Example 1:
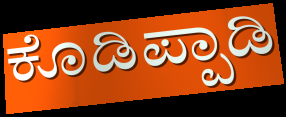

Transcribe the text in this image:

ಕೊಡಿಪ್ಪಾಡಿ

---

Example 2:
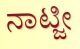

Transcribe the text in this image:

ನಾಟ್ಜೀ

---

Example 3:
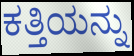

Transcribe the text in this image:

ಕತ್ತಿಯನ್ನು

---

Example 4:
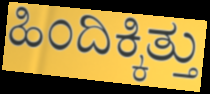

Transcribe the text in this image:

ಹಿಂದಿಕ್ಕಿತ್ತು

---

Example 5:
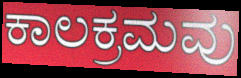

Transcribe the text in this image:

ಕಾಲಕ್ರಮವು